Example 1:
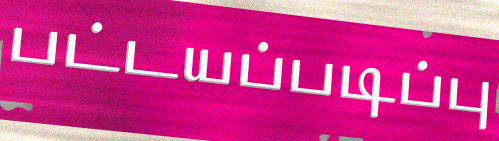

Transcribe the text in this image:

பட்டயப்படிப்பு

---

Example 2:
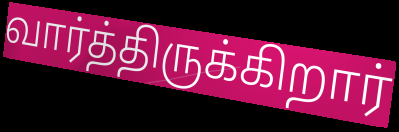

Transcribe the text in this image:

வார்த்திருக்கிறார்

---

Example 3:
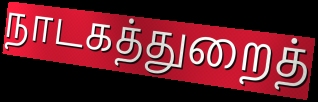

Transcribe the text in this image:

நாடகத்துறைத்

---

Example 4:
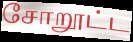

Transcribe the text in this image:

சோறூட்ட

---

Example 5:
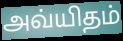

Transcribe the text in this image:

அவ்யிதம்